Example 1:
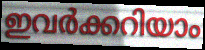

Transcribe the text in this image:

ഇവർക്കറിയാം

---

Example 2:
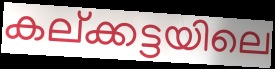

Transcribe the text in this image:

കല്ക്കട്ടയിലെ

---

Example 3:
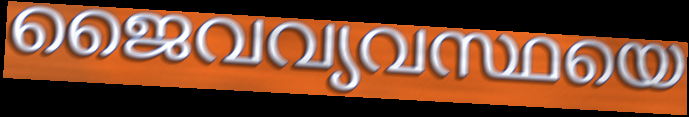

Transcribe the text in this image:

ജൈവവ്യവസ്ഥയെ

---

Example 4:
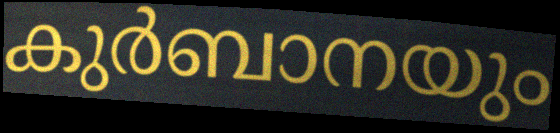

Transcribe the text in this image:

കുർബാനയും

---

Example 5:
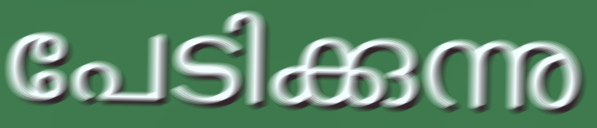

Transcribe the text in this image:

പേടിക്കുന്നു